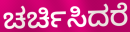
ಚರ್ಚಿಸಿದರೆ